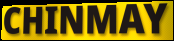
CHINMAY